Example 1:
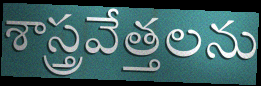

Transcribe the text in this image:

శాస్త్రవేత్తలను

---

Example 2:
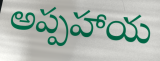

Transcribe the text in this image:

అప్పహాయ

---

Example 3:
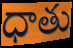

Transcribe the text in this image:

ధాతు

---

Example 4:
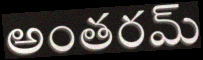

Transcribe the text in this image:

అంతరమ్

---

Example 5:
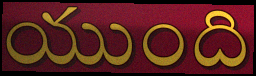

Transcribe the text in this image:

యుంది